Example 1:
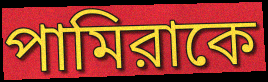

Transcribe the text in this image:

পামিরাকে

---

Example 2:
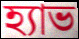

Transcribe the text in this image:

হ্যাভ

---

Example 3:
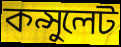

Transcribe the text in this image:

কন্সুলেট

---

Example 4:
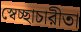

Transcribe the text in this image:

স্বেচ্ছাচারীতা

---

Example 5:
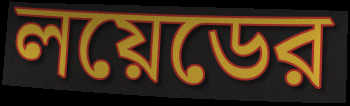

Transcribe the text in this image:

লয়েডের